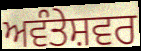
ਅਵੰਤੇਸ਼ਵਰ